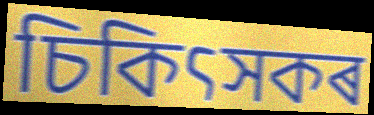
চিকিৎসকৰ